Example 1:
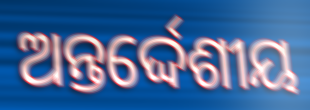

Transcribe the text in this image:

ଅନ୍ତର୍ଦ୍ଦେଶୀୟ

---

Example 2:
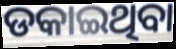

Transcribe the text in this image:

ଡକାଇଥିବା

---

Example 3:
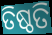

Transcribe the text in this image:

ତିଷ୍ଠତି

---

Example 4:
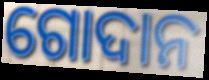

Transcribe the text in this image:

ଗୋଦାନ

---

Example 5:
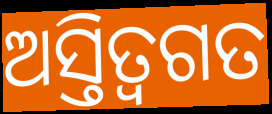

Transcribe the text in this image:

ଅସ୍ତିତ୍ବଗତ